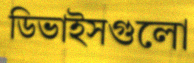
ডিভাইসগুলো